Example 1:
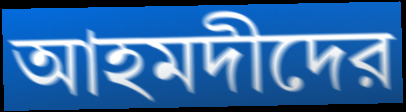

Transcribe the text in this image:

আহমদীদের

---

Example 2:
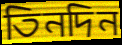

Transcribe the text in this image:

তিনদিন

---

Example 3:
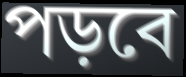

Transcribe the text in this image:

পড়বে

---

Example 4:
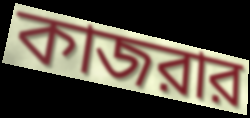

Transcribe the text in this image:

কাজরার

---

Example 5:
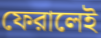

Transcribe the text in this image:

ফেরালেই